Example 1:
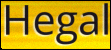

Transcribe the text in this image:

Hegal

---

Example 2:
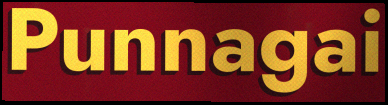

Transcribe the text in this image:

Punnagai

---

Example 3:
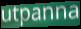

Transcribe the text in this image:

utpanna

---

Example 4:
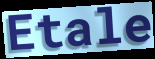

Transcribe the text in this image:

Etale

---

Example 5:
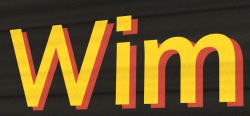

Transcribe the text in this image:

Wim